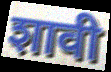
शावी